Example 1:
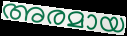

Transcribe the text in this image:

അരമായ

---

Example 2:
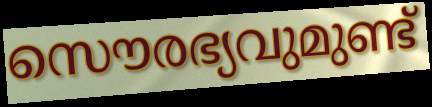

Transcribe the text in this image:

സൌരഭ്യവുമുണ്ട്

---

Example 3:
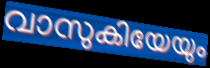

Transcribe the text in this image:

വാസുകിയേയും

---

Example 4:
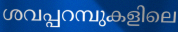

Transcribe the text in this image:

ശവപ്പറമ്പുകളിലെ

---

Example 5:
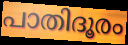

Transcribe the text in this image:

പാതിദൂരം